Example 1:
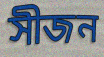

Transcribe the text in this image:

সীজন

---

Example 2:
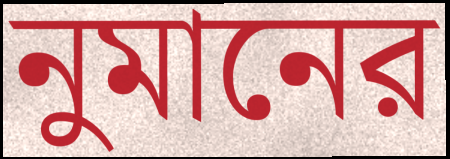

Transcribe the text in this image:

নুমানের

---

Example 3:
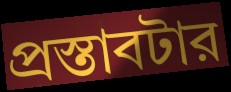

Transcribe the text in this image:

প্রস্তাবটার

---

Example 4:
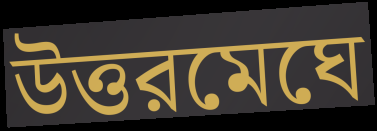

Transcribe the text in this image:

উত্তরমেঘে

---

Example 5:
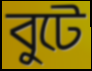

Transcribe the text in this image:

বুটে